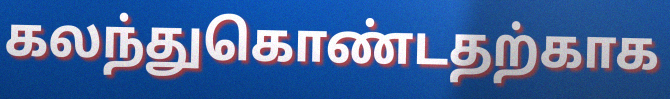
கலந்துகொண்டதற்காக